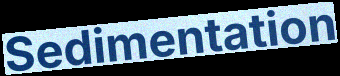
Sedimentation